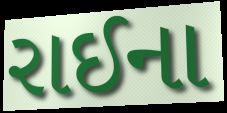
રાઈના